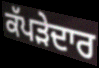
ਕੱਪੜੇਦਾਰ